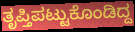
ತೃಪ್ತಿಪಟ್ಟುಕೊಂಡಿದ್ದ